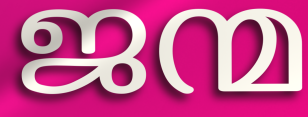
ജന്മ